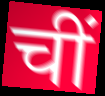
चीं